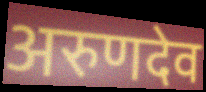
अरुणदेव